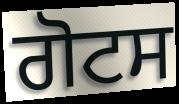
ਗੋਟਸ